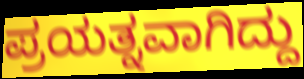
ಪ್ರಯತ್ನವಾಗಿದ್ದು